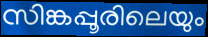
സിങ്കപ്പൂരിലെയും